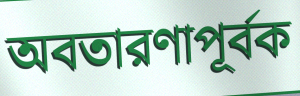
অবতারণাপূর্বক